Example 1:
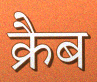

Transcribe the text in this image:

क्रैब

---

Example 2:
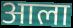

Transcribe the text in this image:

आला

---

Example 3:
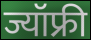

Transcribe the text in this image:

ज्यॉफ्री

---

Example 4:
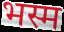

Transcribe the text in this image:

भस्म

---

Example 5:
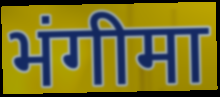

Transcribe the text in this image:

भंगीमा